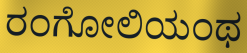
ರಂಗೋಲಿಯಂಥ